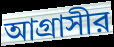
আগ্রাসীর